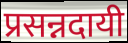
प्रसन्नदायी